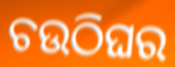
ଚଉଠିଘର